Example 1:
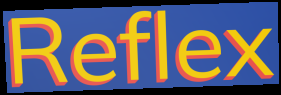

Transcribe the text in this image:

Reflex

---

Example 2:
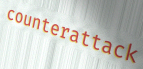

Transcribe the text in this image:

counterattack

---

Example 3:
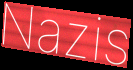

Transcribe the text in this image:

Nazis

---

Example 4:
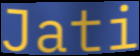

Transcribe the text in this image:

Jati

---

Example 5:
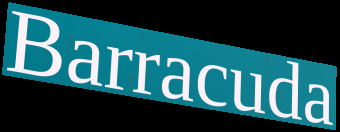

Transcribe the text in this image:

Barracuda